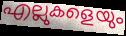
എല്ലുകളെയും